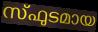
സ്ഫുടമായ